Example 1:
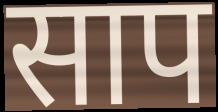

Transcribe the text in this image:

साप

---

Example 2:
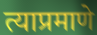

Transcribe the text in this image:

त्याप्रमाणे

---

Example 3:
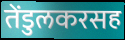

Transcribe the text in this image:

तेंडुलकरसह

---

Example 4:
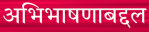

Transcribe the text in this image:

अभिभाषणाबद्दल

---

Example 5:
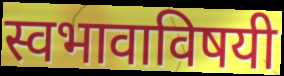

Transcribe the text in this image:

स्वभावाविषयी